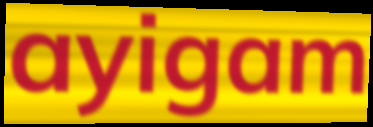
ayigam